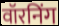
वॉरनिंग